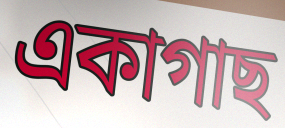
একাগাছ